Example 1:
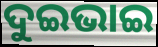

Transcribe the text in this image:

ଦୁଇଭାଇ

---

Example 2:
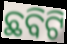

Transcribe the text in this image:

ଛବିଟି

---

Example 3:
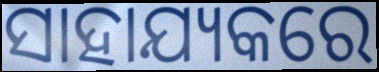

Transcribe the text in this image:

ସାହାଯ୍ୟକରେ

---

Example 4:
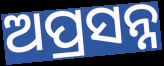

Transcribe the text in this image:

ଅପ୍ରସନ୍ନ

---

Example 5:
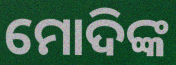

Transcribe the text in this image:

ମୋଦିଙ୍କ